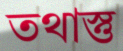
তথাস্তু